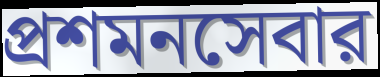
প্রশমনসেবার